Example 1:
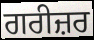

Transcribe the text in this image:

ਗਰੀਜ਼ਰ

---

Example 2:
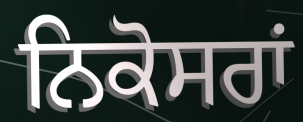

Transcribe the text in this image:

ਨਿਕੋਸਰਾਂ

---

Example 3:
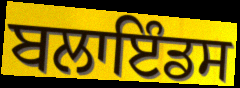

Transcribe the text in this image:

ਬਲਾਇੰਡਸ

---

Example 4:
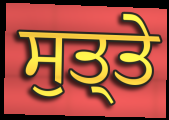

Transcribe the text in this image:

ਸੁਤ੍ਤੇ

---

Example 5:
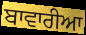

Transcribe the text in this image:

ਬਾਵਾਰੀਆ